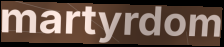
martyrdom